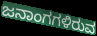
ಜನಾಂಗಗಳಿರುವ